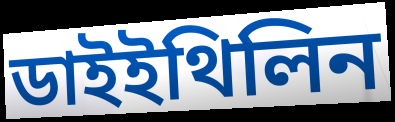
ডাইইথিলিন